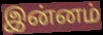
இன்னம்